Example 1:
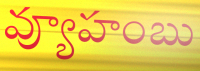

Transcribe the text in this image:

వ్యూహంబు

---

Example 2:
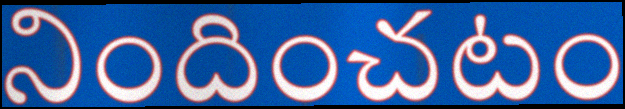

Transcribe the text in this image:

నిందించటం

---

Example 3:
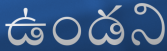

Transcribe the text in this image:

ఉండని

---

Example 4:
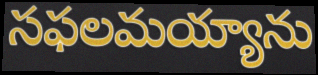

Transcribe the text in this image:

సఫలమయ్యాను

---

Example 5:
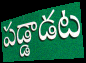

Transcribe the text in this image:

పడ్డాడట